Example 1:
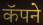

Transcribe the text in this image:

कॅपने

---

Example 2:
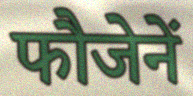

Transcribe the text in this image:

फौजेनें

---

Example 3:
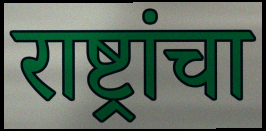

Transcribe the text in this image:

राष्ट्रांचा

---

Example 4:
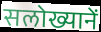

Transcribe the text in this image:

सलोख्यानें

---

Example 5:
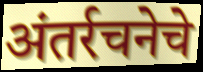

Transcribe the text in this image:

अंतर्रचनेचे